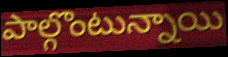
పాల్గొంటున్నాయి